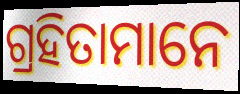
ଗ୍ରହିତାମାନେ